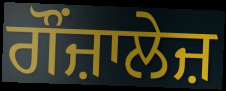
ਗੌਂਜ਼ਾਲੇਜ਼